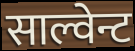
साल्वेन्ट